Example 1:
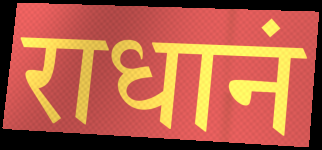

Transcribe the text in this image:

राधानं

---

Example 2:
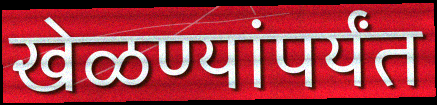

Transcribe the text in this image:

खेळण्यांपर्यंत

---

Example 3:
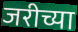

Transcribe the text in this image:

जरीच्या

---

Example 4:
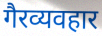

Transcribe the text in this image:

गैरव्यवहार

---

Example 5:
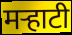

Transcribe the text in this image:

मऱ्हाटी